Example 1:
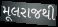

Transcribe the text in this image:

મૂલરાજથી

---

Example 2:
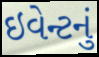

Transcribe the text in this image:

ઇવેન્ટનું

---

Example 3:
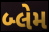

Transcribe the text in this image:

બ્લેમ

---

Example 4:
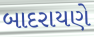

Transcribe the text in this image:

બાદરાયણે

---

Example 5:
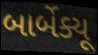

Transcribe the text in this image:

બાર્બેક્યૂ